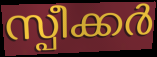
സ്പീക്കർ